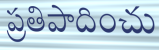
ప్రతిపాదించు